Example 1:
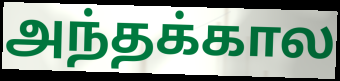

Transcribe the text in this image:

அந்தக்கால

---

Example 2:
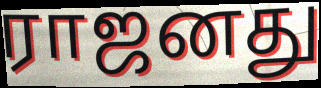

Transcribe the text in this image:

ராஜனது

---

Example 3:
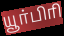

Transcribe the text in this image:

யூர்பிரி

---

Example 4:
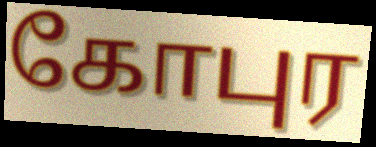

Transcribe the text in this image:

கோபுர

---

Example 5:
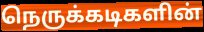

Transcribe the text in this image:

நெருக்கடிகளின்